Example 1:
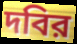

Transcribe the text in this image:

দবির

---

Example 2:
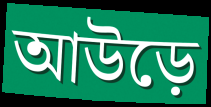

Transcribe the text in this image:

আউড়ে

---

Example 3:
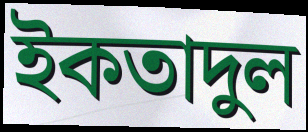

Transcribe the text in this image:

ইকতাদুল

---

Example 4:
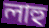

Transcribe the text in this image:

লাহু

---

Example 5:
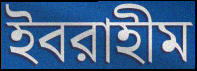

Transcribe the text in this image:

ইবরাহীম